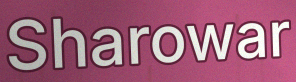
Sharowar